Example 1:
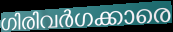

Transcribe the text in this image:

ഗിരിവർഗക്കാരെ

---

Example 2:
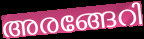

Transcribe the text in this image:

അരങ്ങേറി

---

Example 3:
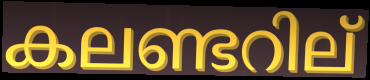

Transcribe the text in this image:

കലണ്ടറില്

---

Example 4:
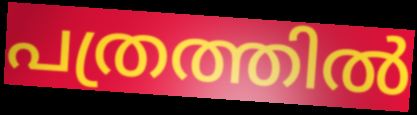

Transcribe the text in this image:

പത്രത്തിൽ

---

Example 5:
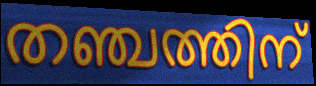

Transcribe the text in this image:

തഞ്ചത്തിന്